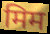
मिम